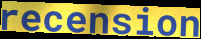
recension